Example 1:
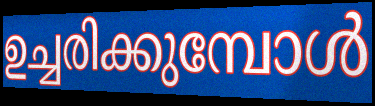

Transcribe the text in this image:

ഉച്ചരിക്കുമ്പോൾ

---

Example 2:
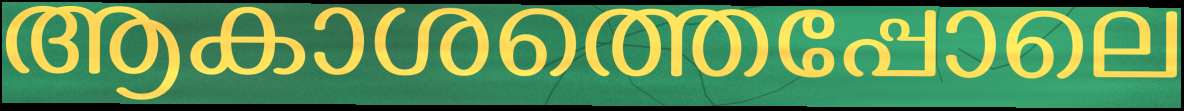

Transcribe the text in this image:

ആകാശത്തെപ്പോലെ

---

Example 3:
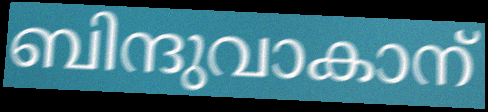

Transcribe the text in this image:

ബിന്ദുവാകാന്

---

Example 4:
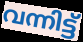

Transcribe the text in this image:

വന്നിട്ട്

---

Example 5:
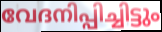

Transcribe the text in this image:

വേദനിപ്പിച്ചിട്ടും